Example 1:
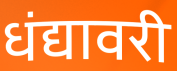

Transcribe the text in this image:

धंद्यावरी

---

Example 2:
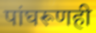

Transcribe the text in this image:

पांघरूणही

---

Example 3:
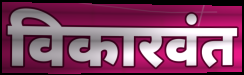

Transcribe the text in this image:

विकारवंत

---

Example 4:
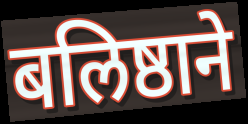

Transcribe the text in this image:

बलिष्ठाने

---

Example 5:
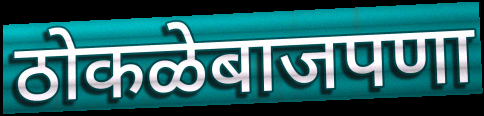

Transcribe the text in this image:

ठोकळेबाजपणा